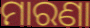
ମାରଣା